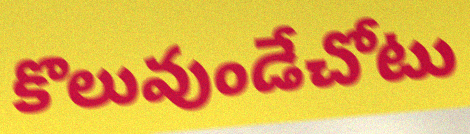
కొలువుండేచోటు